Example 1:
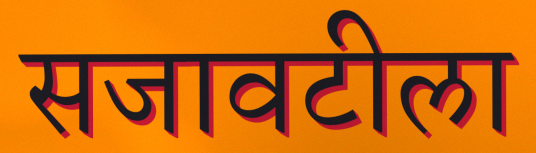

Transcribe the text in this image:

सजावटीला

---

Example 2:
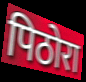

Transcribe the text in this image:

पिठोरा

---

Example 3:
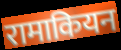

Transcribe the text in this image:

रामाकियन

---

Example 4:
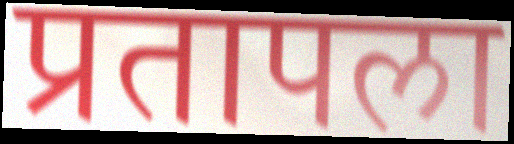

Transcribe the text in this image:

प्रतापला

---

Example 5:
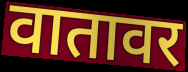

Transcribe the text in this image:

वातावर